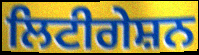
ਲਿਟੀਗੇਸ਼ਨ